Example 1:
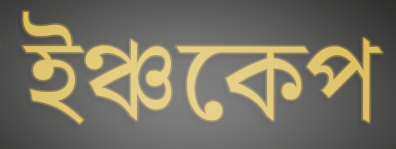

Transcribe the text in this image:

ইঞ্চকেপ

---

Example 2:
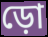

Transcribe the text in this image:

ড়ো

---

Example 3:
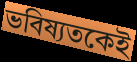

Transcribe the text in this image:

ভবিষ্যতকেই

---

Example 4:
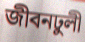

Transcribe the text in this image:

জীবনঢুলী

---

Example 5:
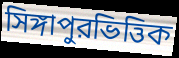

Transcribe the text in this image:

সিঙ্গাপুরভিত্তিক